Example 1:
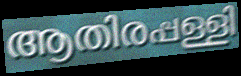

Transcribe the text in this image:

ആതിരപ്പള്ളി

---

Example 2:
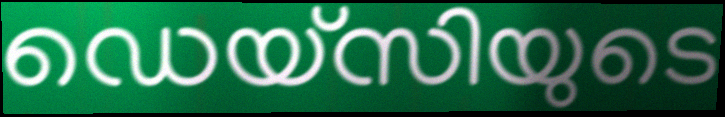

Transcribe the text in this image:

ഡെയ്സിയുടെ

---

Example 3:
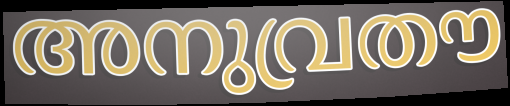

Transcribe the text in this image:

അനുവ്രതൗ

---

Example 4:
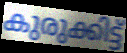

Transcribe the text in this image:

കുരുക്കിട്ട്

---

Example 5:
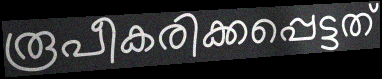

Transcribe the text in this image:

രൂപീകരിക്കപ്പെട്ടത്